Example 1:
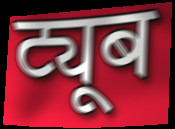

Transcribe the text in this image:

ट्यूब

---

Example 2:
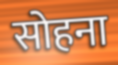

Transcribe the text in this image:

सोहना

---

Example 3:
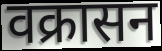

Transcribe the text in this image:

वक्रासन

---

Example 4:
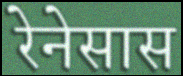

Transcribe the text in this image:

रेनेसास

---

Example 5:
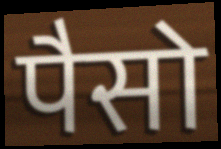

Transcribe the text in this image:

पैसो